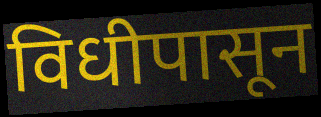
विधीपासून